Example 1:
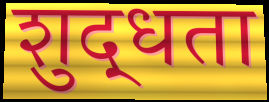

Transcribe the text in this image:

शुद्धता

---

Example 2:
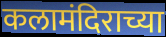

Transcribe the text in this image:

कलामंदिराच्या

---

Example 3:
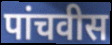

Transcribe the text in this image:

पांचवीस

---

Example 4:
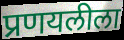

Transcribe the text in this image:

प्रणयलीला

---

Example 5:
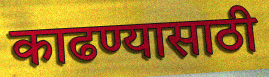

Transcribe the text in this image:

काढण्यासाठी